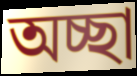
অচ্ছা